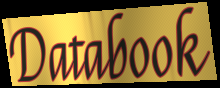
Databook